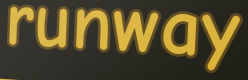
runway